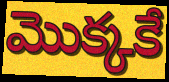
మొక్కకే